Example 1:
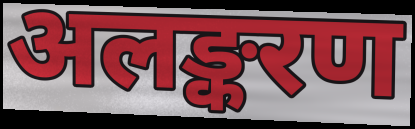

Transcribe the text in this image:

अलङ्करण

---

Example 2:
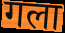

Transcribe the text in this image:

गला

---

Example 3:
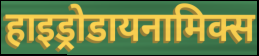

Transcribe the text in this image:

हाइड्रोडायनामिक्स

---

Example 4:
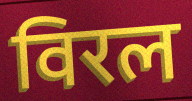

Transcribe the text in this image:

विरल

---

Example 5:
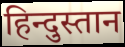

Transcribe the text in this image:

हिन्‍दुस्‍तान